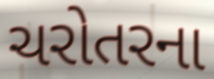
ચરોતરના